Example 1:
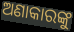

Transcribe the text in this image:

ଅଣାକାରଙ୍କୁ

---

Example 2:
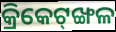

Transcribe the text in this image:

କ୍ରିକେଟ୍‌ଙ୍ଖଳ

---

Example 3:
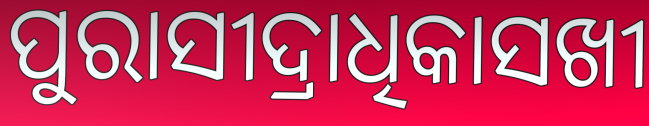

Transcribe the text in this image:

ପୁରାସୀଦ୍ରାଧିକାସଖୀ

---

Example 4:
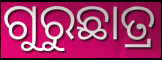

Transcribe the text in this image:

ଗୁରୁଛାତ୍ର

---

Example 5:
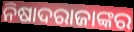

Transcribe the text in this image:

ନିଷାଦରାଜାଙ୍କର